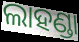
ଲାହଣ୍ଡା